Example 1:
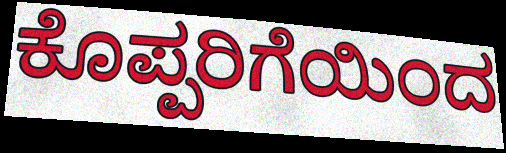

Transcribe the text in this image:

ಕೊಪ್ಪರಿಗೆಯಿಂದ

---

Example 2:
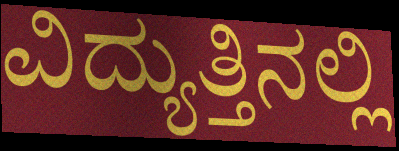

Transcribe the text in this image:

ವಿದ್ಯುತ್ತಿನಲ್ಲಿ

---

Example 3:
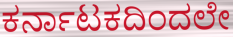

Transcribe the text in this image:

ಕರ್ನಾಟಕದಿಂದಲೇ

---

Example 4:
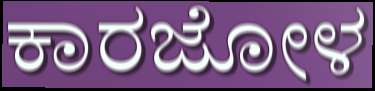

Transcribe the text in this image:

ಕಾರಜೋಳ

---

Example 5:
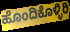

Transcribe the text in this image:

ಹೊಂದಿಕೊಳ್ಳಿರಿ